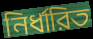
নির্ধারিত